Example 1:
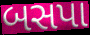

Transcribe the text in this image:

બસપા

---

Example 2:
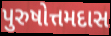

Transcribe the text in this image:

પુરુષોત્તમદાસ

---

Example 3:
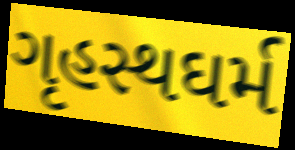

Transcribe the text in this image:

ગૃહસ્થઘર્મ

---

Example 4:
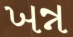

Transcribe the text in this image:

ખન્ન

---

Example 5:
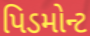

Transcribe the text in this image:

પિડમોન્ટ